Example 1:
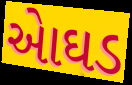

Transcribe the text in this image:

એાઘડ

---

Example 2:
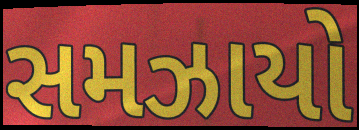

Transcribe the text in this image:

સમઝાયો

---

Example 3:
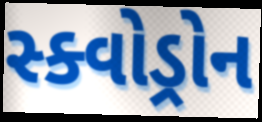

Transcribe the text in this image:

સ્ક્વોડ્રોન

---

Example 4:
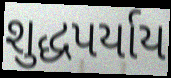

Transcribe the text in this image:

શુદ્ધપર્યાય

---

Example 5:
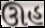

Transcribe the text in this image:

ઊહ